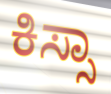
ಕಿಸ್ಸಾ